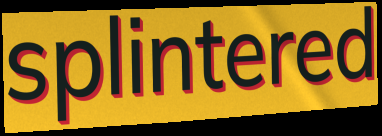
splintered